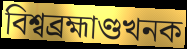
বিশ্বব্ৰহ্মাণ্ডখনক